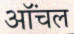
ऑंचल